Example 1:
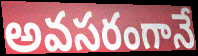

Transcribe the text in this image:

అవసరంగానే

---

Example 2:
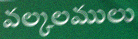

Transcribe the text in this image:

వల్కలములు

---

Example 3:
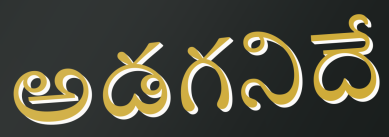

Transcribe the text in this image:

అడగనిదే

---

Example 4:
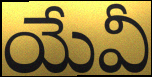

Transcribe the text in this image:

యేవీ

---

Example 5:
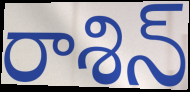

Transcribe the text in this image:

రాశిన్